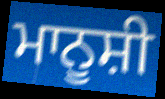
ਮਾਨੂਸ਼ੀ